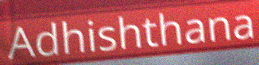
Adhishthana